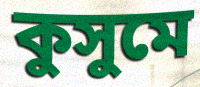
কুসুমে